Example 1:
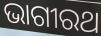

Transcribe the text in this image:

ଭାଗୀରଥ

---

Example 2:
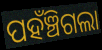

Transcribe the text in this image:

ପହଁଞ୍ଚିଗଲା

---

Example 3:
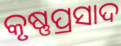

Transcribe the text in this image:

କୃଷ୍ଣପ୍ରସାଦ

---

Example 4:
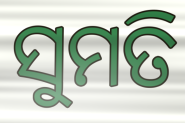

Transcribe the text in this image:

ସୁମତି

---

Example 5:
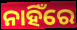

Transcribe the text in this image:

ନାହିଁରେ